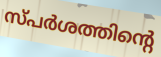
സ്പർശത്തിന്റെ